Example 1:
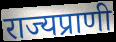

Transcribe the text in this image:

राज्यप्राणी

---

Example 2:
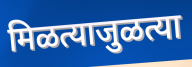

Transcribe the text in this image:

मिळत्याजुळत्या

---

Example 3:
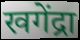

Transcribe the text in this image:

खगेंद्रा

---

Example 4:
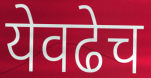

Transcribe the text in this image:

येवढेच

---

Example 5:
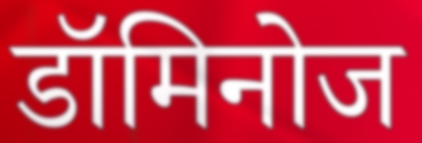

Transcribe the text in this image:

डॉमिनोज